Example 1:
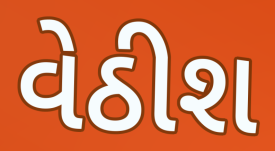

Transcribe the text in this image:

વેઠીશ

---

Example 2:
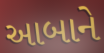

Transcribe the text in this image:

આબાને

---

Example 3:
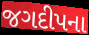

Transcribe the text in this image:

જગદીપના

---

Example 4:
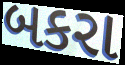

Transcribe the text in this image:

બકરા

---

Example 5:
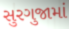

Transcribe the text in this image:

સુરગુજામાં